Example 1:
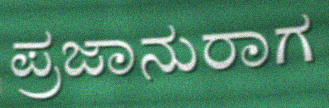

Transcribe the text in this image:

ಪ್ರಜಾನುರಾಗ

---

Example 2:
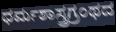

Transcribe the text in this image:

ಧರ್ಮಶಾಸ್ತ್ರಗ್ರಂಥದ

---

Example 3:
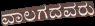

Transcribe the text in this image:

ವಾಲಗದವರು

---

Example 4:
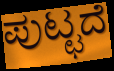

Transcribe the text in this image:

ಪುಟ್ಟದೆ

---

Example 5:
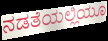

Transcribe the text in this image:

ನಡತೆಯಲ್ಲಿಯೂ